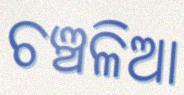
ଚଞ୍ଚଳିଆ